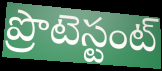
ప్రొటెస్టంట్